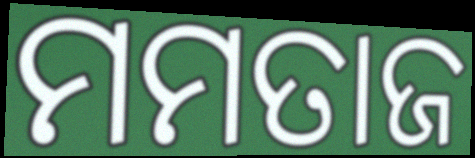
ମମତାଜ